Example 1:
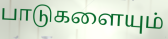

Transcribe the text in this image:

பாடுகளையும்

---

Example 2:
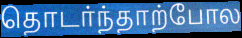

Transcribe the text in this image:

தொடர்ந்தாற்போல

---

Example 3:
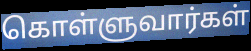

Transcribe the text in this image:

கொள்ளுவார்கள்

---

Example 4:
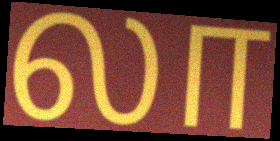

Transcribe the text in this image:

லா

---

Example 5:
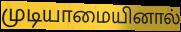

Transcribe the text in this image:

முடியாமையினால்